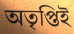
অতৃপ্তিই